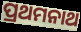
ପ୍ରଥମନାଥ